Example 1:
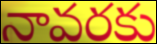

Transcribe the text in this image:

నావరకు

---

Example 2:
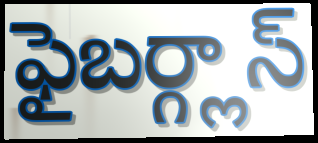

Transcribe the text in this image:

ఫైబర్గ్లాస్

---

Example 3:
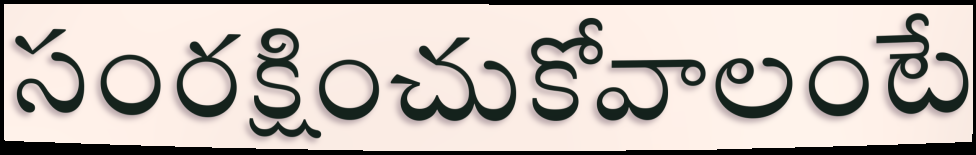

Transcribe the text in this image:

సంరక్షించుకోవాలంటే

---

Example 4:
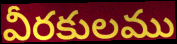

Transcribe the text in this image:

వీరకులము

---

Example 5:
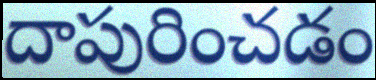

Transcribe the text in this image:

దాపురించడం